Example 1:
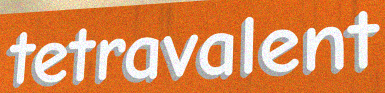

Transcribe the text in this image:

tetravalent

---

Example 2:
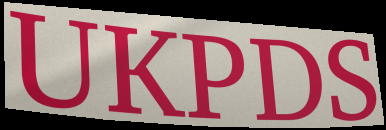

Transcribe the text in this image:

UKPDS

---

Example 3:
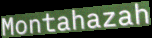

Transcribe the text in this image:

Montahazah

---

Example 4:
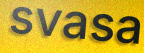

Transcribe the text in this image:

svasa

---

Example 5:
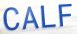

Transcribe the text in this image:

CALF